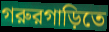
গরুরগাড়িতে